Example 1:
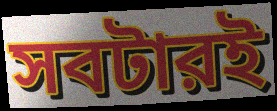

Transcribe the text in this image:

সবটারই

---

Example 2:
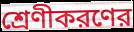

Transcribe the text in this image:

শ্রেণীকরণের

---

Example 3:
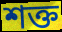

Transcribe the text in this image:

শক্ত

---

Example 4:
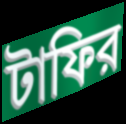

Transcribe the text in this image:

টাফির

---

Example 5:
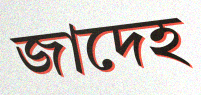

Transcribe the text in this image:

জাদেহ